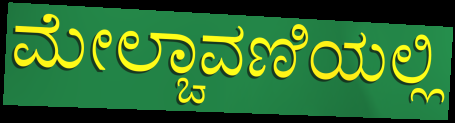
ಮೇಲ್ಚಾವಣಿಯಲ್ಲಿ